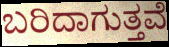
ಬರಿದಾಗುತ್ತವೆ